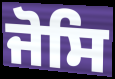
ਜੋਸਿ